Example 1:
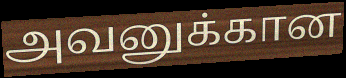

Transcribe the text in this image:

அவனுக்கான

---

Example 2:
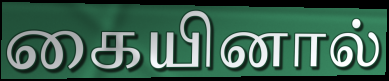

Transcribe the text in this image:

கையினால்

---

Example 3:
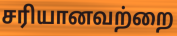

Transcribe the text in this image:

சரியானவற்றை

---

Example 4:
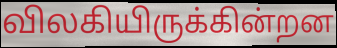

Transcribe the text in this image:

விலகியிருக்கின்றன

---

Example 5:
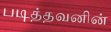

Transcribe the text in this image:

படித்தவனின்